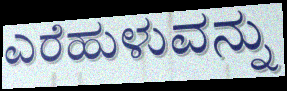
ಎರೆಹುಳುವನ್ನು